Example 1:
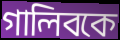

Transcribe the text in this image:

গালিবকে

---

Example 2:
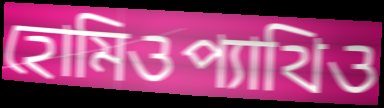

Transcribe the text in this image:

হোমিওপ্যাথিও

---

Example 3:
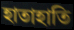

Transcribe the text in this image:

হাতাহাতি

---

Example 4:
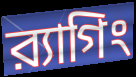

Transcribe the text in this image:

র‍্যাগিং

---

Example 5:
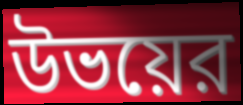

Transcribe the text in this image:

উভয়ের